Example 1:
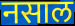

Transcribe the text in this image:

नसाल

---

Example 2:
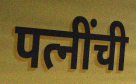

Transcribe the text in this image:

पत्नींची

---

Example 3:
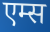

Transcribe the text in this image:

एम्स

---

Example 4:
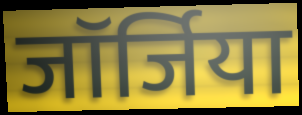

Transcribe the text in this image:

जॉर्जिया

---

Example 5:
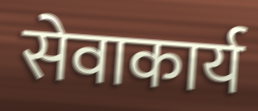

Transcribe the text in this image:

सेवाकार्य